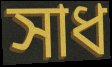
সাধ